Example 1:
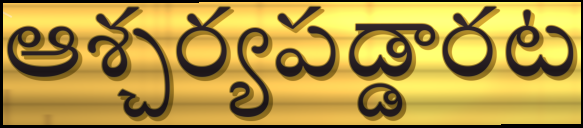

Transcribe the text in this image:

ఆశ్చర్యపడ్డారట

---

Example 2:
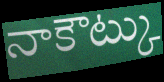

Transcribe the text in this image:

నాకౌట్కు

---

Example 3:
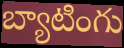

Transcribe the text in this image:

బ్యాటింగు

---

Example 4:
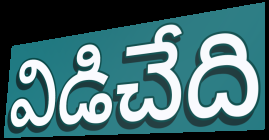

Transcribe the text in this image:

విడిచేది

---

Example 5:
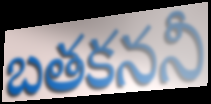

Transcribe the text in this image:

బతకననీ